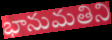
భానుమతిని